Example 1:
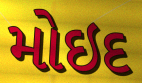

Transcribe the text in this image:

મોઇદ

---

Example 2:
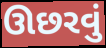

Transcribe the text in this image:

ઊછરવું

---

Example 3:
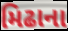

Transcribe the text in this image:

મિઢાના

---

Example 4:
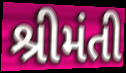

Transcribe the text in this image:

શ્રીમંતી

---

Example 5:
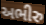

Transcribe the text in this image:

અભીરુ